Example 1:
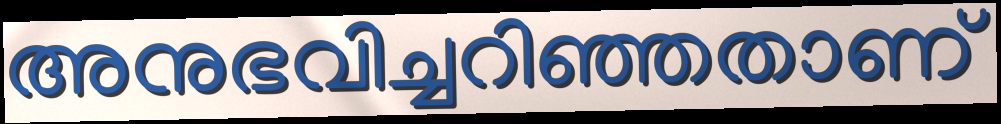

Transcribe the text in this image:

അനുഭവിച്ചറിഞ്ഞതാണ്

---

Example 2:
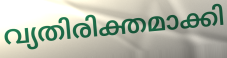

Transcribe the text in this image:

വ്യതിരിക്തമാക്കി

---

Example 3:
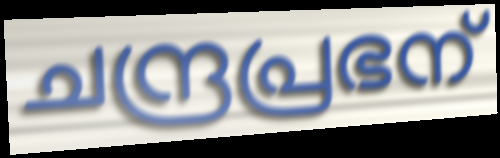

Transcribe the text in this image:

ചന്ദ്രപ്രഭന്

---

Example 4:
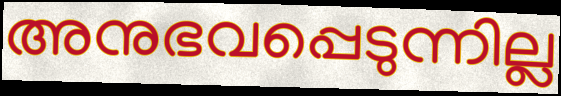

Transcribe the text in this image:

അനുഭവപ്പെടുന്നില്ല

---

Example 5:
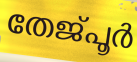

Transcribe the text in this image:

തേജ്പൂർ